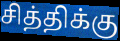
சித்திக்கு